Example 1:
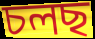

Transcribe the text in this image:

চলছ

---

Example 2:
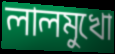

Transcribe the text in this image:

লালমুখো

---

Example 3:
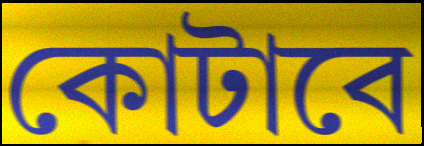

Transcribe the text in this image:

কোটাবে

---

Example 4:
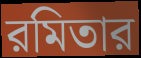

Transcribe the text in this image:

রমিতার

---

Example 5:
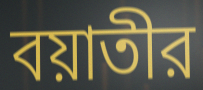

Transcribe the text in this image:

বয়াতীর